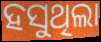
ହସୁଥିଲା